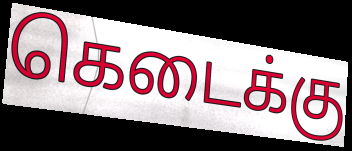
கெடைக்கு